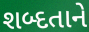
શબ્દતાને